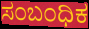
ಸಂಬಂಧಿಕ